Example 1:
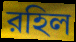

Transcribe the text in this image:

রহিল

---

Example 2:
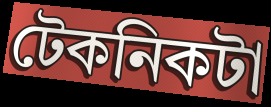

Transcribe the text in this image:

টেকনিকটা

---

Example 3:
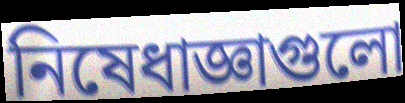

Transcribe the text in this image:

নিষেধাজ্ঞাগুলো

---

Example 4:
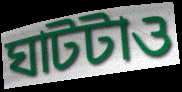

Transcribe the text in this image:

ঘাটটাও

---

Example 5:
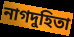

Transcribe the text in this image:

নাগদুহিতা